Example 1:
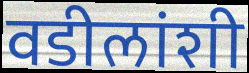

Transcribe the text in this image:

वडीलांशी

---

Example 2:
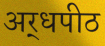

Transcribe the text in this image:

अर्धपीठ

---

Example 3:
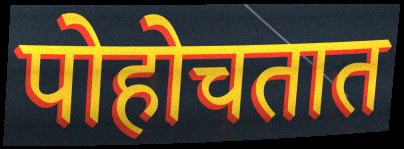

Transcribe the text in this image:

पोहोचतात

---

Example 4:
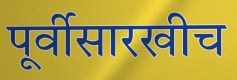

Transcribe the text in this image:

पूर्वीसारखीच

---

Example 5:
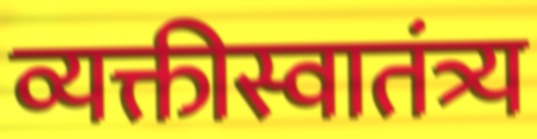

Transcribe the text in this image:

व्यक्तीस्वातंत्र्य